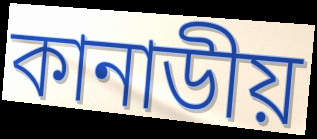
কানাডীয়